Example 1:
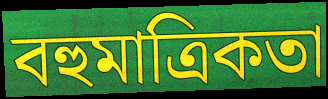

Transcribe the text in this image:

বহুমাত্রিকতা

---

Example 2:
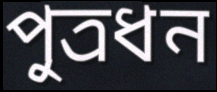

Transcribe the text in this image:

পুত্রধন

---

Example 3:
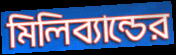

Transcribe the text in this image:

মিলিব্যান্ডের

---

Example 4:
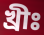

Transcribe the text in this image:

খ্রীঃ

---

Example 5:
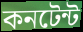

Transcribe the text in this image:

কনটেন্ট